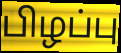
பிழப்பு